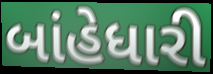
બાંહેધારી